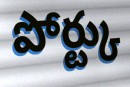
పోర్ట్కు